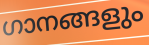
ഗാനങ്ങളും